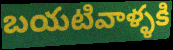
బయటివాళ్ళకి